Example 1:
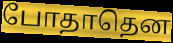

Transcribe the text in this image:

போதாதென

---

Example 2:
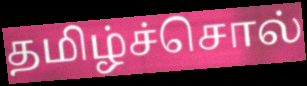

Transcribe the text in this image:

தமிழ்ச்சொல்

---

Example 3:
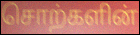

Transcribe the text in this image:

சொற்களின்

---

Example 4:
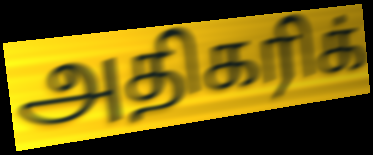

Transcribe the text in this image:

அதிகரிக்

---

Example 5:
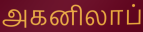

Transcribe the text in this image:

அகனிலாப்